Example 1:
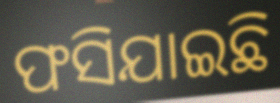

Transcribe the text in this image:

ଫସିଯାଇଛି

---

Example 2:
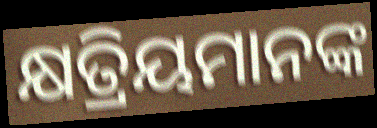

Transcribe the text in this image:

କ୍ଷତ୍ରିୟମାନଙ୍କ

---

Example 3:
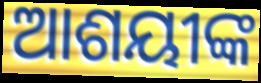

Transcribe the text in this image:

ଆଶୟୀଙ୍କ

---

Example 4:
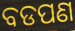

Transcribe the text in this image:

ବଡପଣ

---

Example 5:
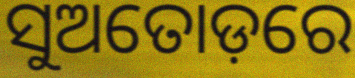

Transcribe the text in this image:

ସୁଅତୋଡ଼ରେ